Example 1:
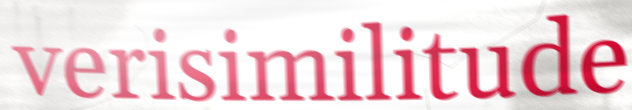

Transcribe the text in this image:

verisimilitude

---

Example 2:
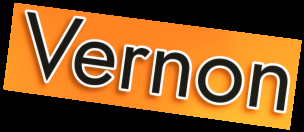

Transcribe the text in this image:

Vernon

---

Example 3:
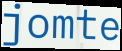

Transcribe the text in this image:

jomte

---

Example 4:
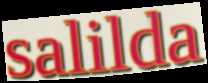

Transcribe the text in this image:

salilda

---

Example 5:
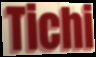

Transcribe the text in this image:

Tichi